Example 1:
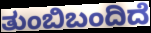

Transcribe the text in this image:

ತುಂಬಿಬಂದಿದೆ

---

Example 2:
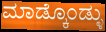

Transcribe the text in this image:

ಮಾಡ್ಕೊಂಡ್ಳು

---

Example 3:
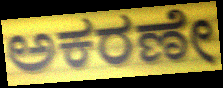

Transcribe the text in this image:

ಅಕರಣೇ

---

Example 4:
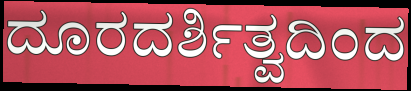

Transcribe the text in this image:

ದೂರದರ್ಶಿತ್ವದಿಂದ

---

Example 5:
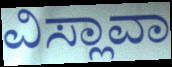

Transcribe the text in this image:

ವಿಸ್ಲಾವಾ